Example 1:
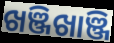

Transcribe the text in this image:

ଖଞ୍ଜିଖାଞ୍ଜି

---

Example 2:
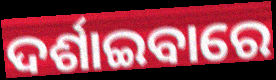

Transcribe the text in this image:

ଦର୍ଶାଇବାରେ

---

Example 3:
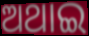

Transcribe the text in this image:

ଅଥାଇ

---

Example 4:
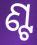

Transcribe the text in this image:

ଣ୍ଟ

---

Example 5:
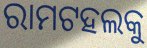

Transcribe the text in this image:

ରାମଟହଲକୁ